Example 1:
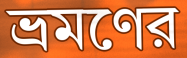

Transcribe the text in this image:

ভ্রমণের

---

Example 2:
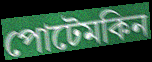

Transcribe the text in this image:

পোটেমকিন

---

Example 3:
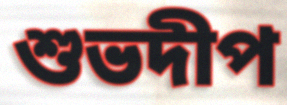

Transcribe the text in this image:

শুভদীপ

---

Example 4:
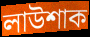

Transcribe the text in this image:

লাউশাক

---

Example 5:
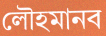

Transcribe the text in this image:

লৌহমানব